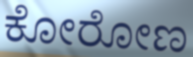
ಕೋರೋಣ